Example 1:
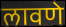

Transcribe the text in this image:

लावणे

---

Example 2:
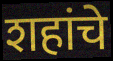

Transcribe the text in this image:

शहांचे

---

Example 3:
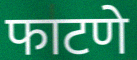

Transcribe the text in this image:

फाटणे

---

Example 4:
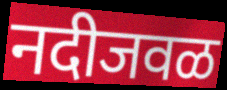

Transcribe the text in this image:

नदीजवळ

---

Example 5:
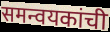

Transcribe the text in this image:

समन्वयकांची